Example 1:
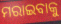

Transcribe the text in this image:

ମରାଇବାକୁ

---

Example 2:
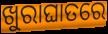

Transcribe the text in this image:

ଖୁରାଘାତରେ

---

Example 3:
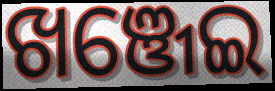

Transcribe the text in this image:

ଖଞ୍ଜେଇ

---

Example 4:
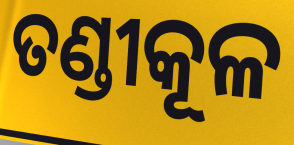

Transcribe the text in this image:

ତଣ୍ଡୀକୂଳ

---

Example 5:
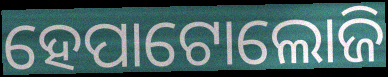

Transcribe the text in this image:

ହେପାଟୋଲୋଜି